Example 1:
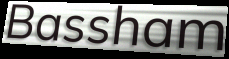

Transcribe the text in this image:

Bassham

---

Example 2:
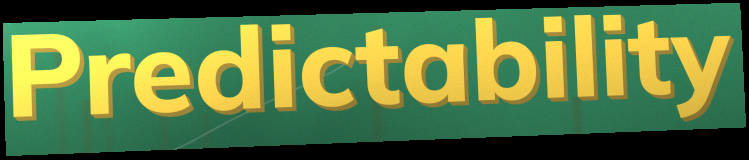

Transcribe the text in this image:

Predictability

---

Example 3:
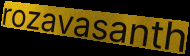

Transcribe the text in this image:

rozavasanth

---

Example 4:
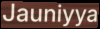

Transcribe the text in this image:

Jauniyya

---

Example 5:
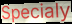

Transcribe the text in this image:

Specialy